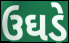
ઉઘડે